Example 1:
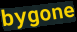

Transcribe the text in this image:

bygone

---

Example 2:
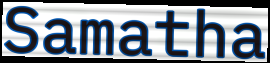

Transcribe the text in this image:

Samatha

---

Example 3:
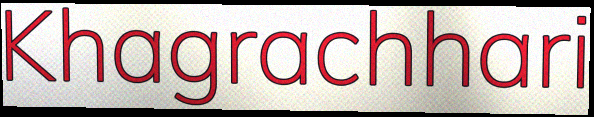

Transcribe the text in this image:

Khagrachhari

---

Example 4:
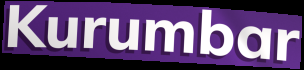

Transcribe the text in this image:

Kurumbar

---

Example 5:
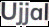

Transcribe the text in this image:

Ujjal